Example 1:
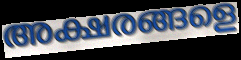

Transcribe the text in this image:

അക്ഷരങ്ങളെ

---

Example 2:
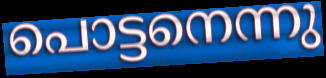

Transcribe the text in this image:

പൊട്ടനെന്നു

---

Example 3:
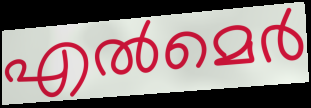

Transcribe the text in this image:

എൽമെർ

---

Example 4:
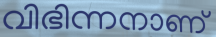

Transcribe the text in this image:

വിഭിന്നനാണ്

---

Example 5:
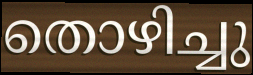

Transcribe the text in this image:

തൊഴിച്ചു